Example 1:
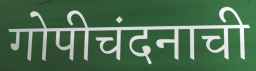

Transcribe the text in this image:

गोपीचंदनाची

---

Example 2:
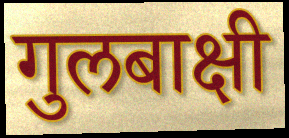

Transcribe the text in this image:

गुलबाक्षी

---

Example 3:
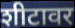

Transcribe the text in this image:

शीटावर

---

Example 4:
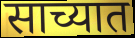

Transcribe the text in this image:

साच्यात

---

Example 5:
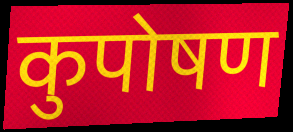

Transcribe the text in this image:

कुपोषण